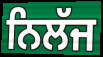
ਨਿਲੱਜ